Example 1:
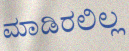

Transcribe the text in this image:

ಮಾಡಿರಲಿಲ್ಲ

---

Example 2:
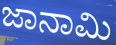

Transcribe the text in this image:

ಜಾನಾಮಿ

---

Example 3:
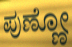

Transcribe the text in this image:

ಪುಣ್ಣೋ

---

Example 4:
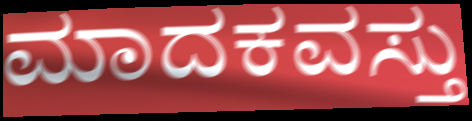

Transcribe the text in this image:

ಮಾದಕವಸ್ತು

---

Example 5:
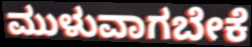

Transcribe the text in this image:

ಮುಳುವಾಗಬೇಕೆ